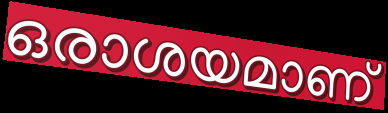
ഒരാശയമാണ്